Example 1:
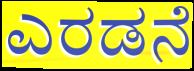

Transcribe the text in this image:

ಎರಡನೆ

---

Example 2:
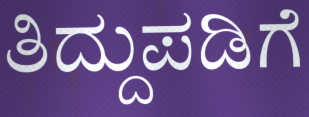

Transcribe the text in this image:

ತಿದ್ದುಪಡಿಗೆ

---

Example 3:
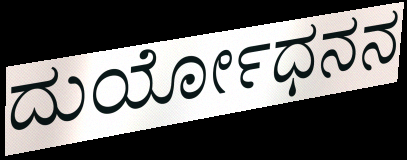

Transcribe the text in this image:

ದುರ್ಯೋಧನನ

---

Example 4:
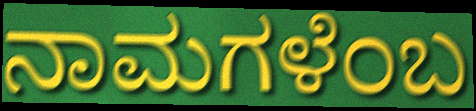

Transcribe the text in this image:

ನಾಮಗಳೆಂಬ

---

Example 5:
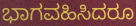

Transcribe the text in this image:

ಭಾಗವಹಿಸಿದರೂ